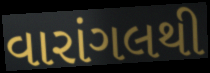
વારાંગલથી